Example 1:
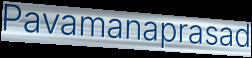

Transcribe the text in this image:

Pavamanaprasad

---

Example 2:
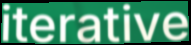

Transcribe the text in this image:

iterative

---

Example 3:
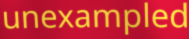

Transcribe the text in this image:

unexampled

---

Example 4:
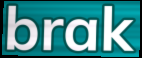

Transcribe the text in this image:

brak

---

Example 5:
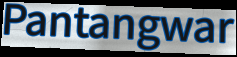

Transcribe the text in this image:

Pantangwar